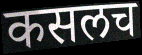
कसलच